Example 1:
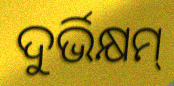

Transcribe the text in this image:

ଦୁର୍ଭିକ୍ଷମ୍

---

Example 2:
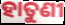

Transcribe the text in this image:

ହାତୁଣୀ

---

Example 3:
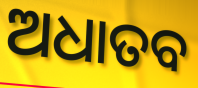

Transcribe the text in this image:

ଅଧାତବ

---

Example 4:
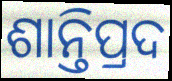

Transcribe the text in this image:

ଶାନ୍ତିପ୍ରଦ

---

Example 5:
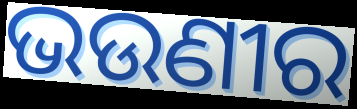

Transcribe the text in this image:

ଭଉଣୀର